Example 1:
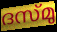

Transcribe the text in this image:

ദസ്മു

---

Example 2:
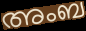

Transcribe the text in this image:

അംബ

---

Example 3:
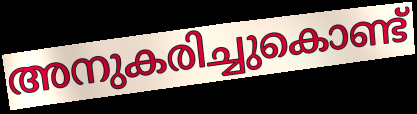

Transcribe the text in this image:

അനുകരിച്ചുകൊണ്ട്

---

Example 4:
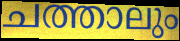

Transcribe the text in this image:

ചത്താലും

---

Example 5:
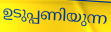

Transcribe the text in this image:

ഉടുപ്പണിയുന്ന